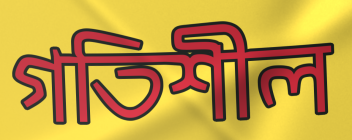
গতিশীল